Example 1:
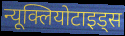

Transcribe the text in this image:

न्यूक्लियोटाइड्स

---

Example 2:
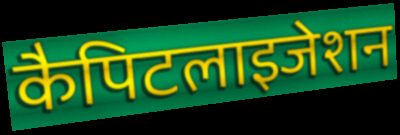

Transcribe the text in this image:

कैपिटलाइजेशन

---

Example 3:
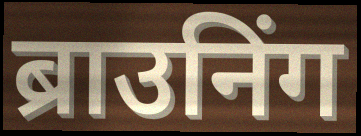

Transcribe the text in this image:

ब्राउनिंग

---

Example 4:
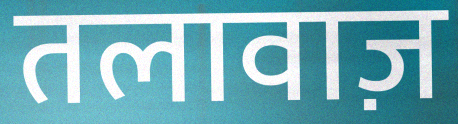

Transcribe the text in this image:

तलावाज़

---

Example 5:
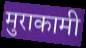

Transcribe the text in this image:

मुराकामी